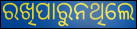
ରଖିପାରୁନଥିଲେ